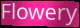
Flowery